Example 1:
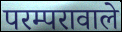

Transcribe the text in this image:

परम्परावाले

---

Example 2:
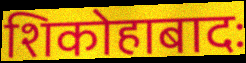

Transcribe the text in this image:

शिकोहाबादः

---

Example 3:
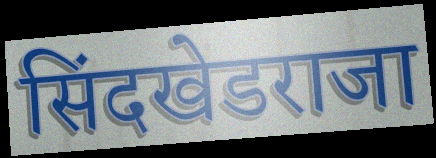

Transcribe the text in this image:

सिंदखेडराजा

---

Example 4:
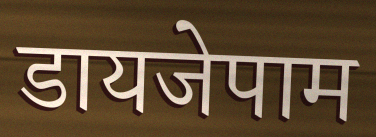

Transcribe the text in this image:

डायजेपाम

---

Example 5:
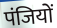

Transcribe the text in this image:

पंजियों